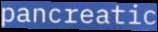
pancreatic